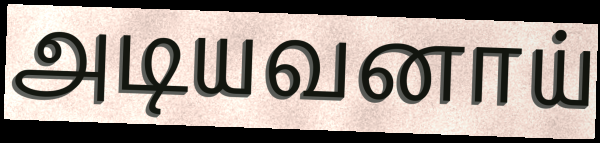
அடியவனாய்